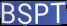
BSPT